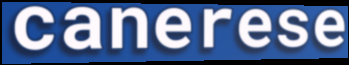
canerese